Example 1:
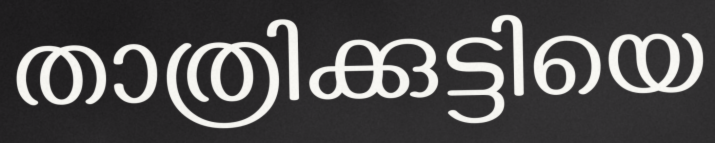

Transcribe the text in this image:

താത്രിക്കുട്ടിയെ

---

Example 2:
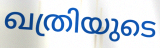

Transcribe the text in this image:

ഖത്രിയുടെ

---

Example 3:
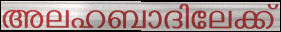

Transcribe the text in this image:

അലഹബാദിലേക്ക്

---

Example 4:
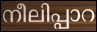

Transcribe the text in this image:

നീലിപ്പാറ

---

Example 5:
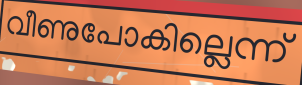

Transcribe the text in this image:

വീണുപോകില്ലെന്ന്